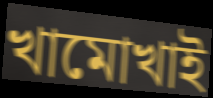
খামোখাই